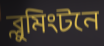
ব্লুমিংটনে